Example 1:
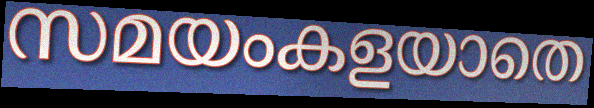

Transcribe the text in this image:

സമയംകളയാതെ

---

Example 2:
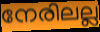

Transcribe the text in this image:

നേരിലല്ല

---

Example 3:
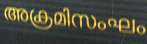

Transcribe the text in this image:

അക്രമിസംഘം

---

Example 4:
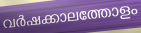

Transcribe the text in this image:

വർഷക്കാലത്തോളം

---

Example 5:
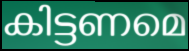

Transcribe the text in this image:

കിട്ടണമെ